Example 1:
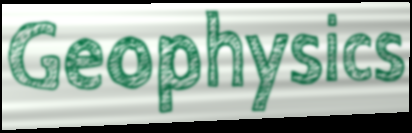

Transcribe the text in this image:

Geophysics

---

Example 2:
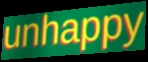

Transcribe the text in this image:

unhappy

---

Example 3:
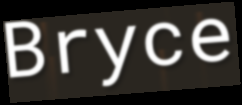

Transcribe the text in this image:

Bryce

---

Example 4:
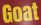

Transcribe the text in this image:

Goat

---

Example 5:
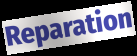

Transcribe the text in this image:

Reparation